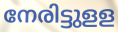
നേരിട്ടുളള